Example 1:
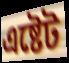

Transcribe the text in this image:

এষ্টেট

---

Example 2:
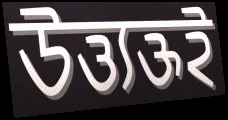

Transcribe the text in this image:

উত্ত্যক্তই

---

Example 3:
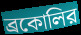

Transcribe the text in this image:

ব্রকোলির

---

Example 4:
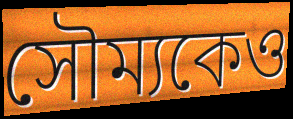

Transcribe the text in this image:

সৌম্যকেও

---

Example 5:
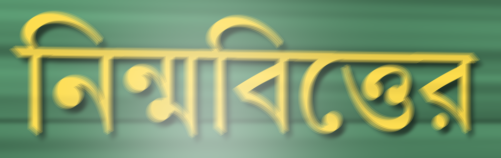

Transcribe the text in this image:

নিন্মবিত্তের